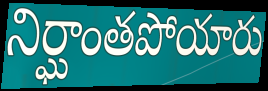
నిర్ఘాంతపోయారు